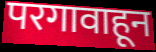
परगावाहून